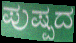
ಪುಷ್ಪದ